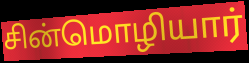
சின்மொழியார்